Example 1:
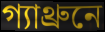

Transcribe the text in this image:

গ্যাথ্রুনে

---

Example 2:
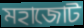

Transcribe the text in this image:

মহাজোট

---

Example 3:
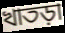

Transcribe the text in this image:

খাতড়া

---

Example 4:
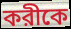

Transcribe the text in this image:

করীকে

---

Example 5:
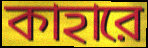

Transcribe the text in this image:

কাহারে